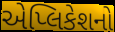
એપ્લિકેશનો